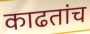
काढतांच